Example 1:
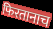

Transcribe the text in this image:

फिरतानाच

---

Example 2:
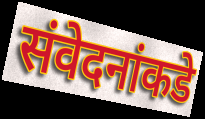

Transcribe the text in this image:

संवेदनांकडे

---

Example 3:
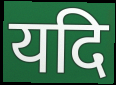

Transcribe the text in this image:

यदि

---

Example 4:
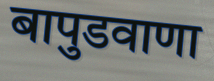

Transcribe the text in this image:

बापुडवाणा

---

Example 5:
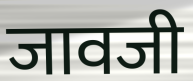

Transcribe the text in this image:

जावजी